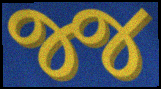
જ્જ